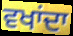
ਵਖਾਂਦਾ